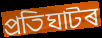
প্ৰতিঘাটৰ